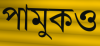
পামুকও